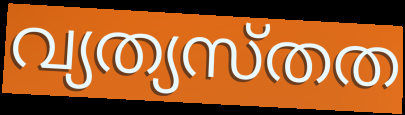
വ്യത്യസ്തത